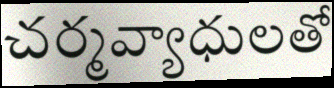
చర్మవ్యాధులతో